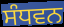
ਸੰਧਵਨ